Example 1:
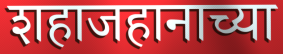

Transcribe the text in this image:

शहाजहानाच्या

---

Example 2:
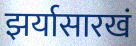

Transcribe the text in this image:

झर्यासारखं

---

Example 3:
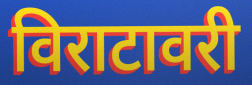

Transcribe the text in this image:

विराटावरी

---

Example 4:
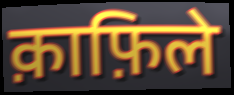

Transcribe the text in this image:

क़ाफ़िले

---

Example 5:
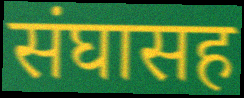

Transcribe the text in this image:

संघासह